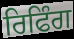
ਰਿਫਿੰਗ